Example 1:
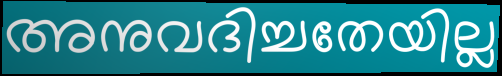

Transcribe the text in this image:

അനുവദിച്ചതേയില്ല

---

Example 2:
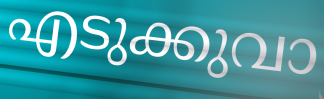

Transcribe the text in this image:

എടുക്കുവാ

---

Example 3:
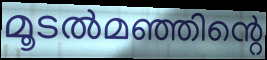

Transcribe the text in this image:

മൂടൽമഞ്ഞിന്റെ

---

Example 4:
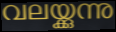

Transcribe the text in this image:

വലയ്ക്കുന്നു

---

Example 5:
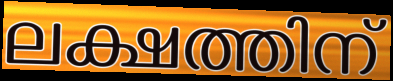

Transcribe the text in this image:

ലക്ഷത്തിന്